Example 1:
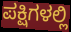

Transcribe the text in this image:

ಪಕ್ಷಿಗಳಲ್ಲಿ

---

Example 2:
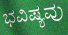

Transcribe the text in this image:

ಭವಿಷ್ಯವು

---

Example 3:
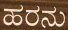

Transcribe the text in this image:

ಹರನು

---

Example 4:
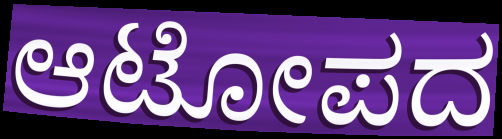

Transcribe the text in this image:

ಆಟೋಪದ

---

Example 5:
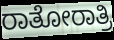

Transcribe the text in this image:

ರಾತೋರಾತ್ರಿ